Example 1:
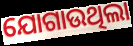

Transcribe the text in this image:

ଯୋଗାଉଥିଲା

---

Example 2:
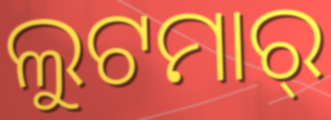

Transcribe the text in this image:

ଲୁଟମାର୍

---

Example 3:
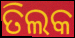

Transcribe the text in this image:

ତିଲକ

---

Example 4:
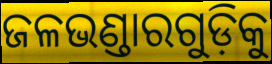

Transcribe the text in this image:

ଜଳଭଣ୍ଡାରଗୁଡ଼ିକୁ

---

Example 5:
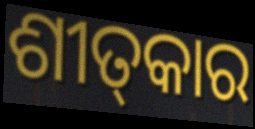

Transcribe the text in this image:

ଶୀତ୍‌କାର